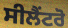
ਸੀਲੈਂਟਰੋ